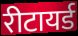
रीटायर्ड